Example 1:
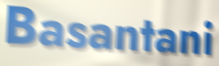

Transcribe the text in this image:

Basantani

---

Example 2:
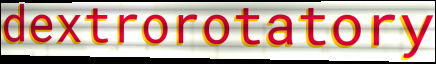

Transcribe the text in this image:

dextrorotatory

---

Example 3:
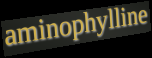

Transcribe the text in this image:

aminophylline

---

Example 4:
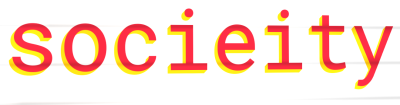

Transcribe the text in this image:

socieity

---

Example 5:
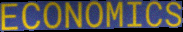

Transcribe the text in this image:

ECONOMICS